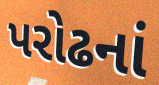
પરોઢનાં